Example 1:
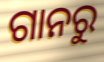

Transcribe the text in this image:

ଗାନରୁ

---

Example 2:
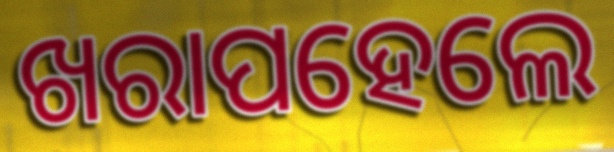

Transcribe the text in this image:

ଖରାପହେଲେ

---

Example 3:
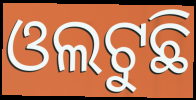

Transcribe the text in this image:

ଓଲଟୁଛି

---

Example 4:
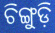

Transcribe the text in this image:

ଚିଙ୍ଗୁଡ଼ି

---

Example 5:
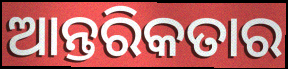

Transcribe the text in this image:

ଆନ୍ତରିକତାର